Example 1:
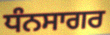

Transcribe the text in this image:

ਧੰਨਸਾਗਰ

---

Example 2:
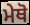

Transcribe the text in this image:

ਮੇਥੋ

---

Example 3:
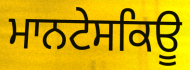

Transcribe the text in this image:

ਮਾਨਟੇਸਕਿਊ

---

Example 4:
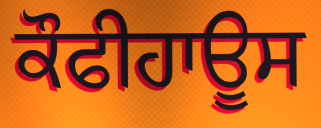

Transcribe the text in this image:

ਕੌਫੀਹਾਊਸ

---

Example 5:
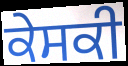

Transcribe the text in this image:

ਕੇਸਕੀ